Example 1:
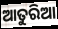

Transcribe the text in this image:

ଆତୁରିଆ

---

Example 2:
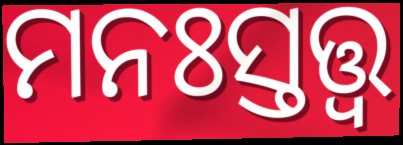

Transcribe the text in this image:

ମନଃସ୍ତତ୍ତ୍ଵ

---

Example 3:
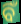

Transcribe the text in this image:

ବିଁ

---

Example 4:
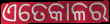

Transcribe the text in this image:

ଏତେକାଳର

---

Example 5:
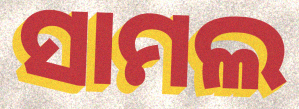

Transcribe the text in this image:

ସାମଲ